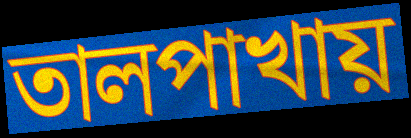
তালপাখায়